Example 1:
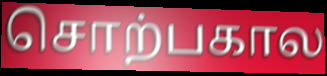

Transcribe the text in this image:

சொற்பகால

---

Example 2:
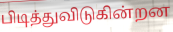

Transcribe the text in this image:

பிடித்துவிடுகின்றன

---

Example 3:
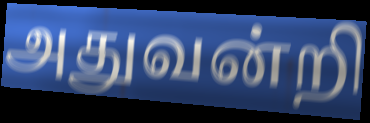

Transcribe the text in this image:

அதுவன்றி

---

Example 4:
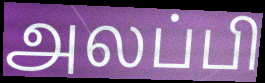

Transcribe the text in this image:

அலப்பி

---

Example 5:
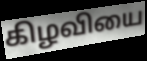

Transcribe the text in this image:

கிழவியை